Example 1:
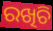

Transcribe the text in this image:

ରଖିଚି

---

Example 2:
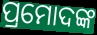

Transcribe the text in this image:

ପ୍ରମୋଦଙ୍କ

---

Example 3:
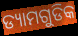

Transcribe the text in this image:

ଡ୍ୟାମଗୁଡିକ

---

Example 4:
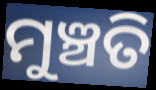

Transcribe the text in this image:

ମୁଞ୍ଚତି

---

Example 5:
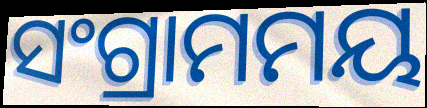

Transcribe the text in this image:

ସଂଗ୍ରାମମୟ